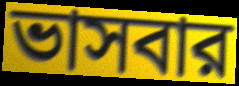
ভাসবার